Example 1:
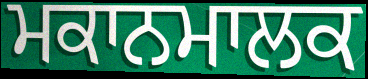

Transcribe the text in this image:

ਮਕਾਨਮਾਲਕ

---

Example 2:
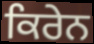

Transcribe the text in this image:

ਕਿਰੇਨ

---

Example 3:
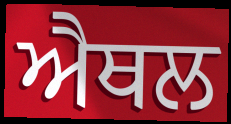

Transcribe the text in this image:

ਐਥਲ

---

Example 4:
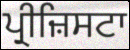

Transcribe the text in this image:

ਪ੍ਰੀਜ਼ਿਸਟਾ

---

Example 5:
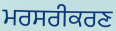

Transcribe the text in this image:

ਮਰਸਰੀਕਰਣ